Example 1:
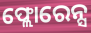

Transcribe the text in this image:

ଫ୍ଲୋରେନ୍ସ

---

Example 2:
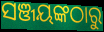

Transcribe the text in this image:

ସଞ୍ଜୟଙ୍କଠାରୁ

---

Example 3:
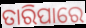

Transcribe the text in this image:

ତାରିପାରେ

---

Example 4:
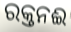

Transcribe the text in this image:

ରକ୍ତନଈ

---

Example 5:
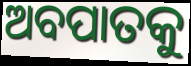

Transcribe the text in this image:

ଅବପାତକୁ